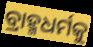
ବ୍ରାହ୍ମଧର୍ମକୁ